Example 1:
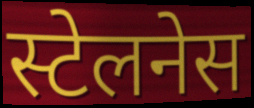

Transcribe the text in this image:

स्टेलनेस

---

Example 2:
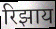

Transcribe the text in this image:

रिझाय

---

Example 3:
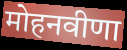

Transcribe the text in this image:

मोहनवीणा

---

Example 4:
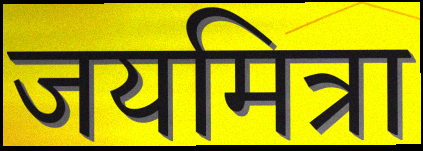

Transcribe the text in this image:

जयमित्रा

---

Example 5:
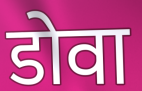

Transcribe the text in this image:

डोवा